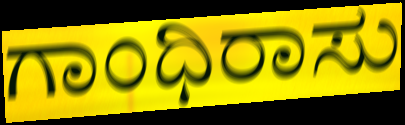
ಗಾಂಧಿರಾಸು